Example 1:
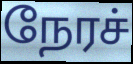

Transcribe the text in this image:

நேரச்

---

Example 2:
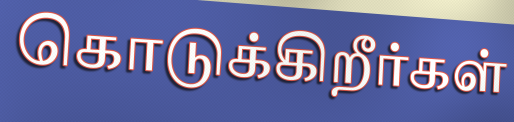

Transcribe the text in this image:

கொடுக்கிறீர்கள்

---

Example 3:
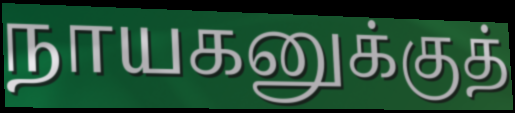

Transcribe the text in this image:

நாயகனுக்குத்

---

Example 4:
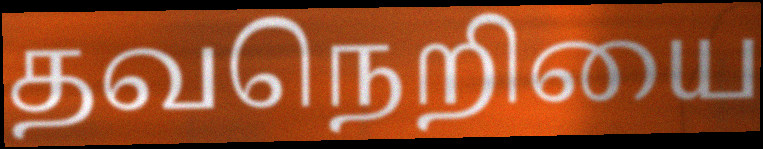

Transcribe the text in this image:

தவநெறியை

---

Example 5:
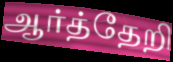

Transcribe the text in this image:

ஆர்த்தேறி